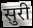
सुरी